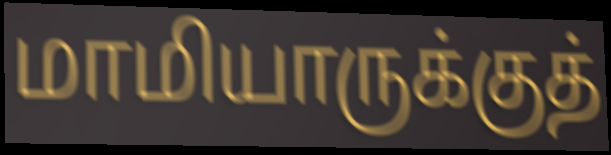
மாமியாருக்குத்